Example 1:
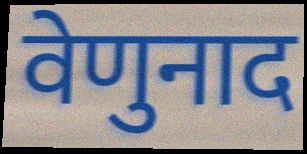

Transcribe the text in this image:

वेणुनाद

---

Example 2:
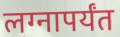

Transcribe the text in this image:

लग्नापर्यंत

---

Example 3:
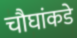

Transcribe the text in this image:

चौघांकडे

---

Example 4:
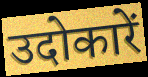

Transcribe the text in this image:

उदोकारें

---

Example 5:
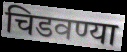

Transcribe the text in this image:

चिडवण्या